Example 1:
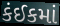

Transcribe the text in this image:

કંઈકમાં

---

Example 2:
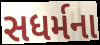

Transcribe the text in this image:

સધર્મના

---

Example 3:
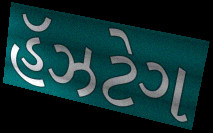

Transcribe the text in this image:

હૅઝટેગ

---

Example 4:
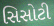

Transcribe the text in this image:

સિસોટી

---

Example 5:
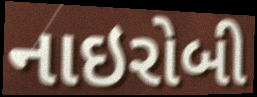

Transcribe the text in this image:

નાઇરોબી